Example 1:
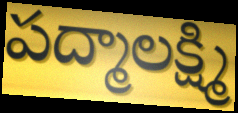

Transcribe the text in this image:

పద్మాలక్ష్మి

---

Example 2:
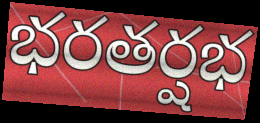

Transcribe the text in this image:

భరతర్షభ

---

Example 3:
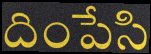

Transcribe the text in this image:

దింపేసి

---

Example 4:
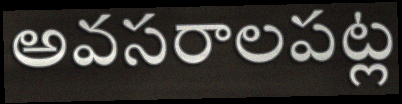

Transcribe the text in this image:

అవసరాలపట్ల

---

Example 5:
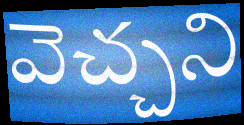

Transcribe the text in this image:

వెచ్చని